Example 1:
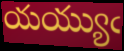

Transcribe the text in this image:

యయ్యుఁ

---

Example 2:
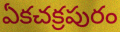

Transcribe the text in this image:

ఏకచక్రపురం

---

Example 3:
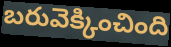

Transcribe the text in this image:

బరువెక్కించింది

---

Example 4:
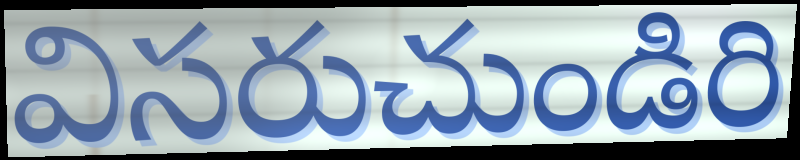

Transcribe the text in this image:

విసరుచుండిరి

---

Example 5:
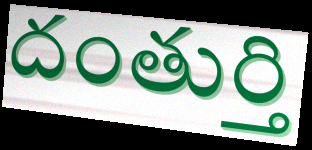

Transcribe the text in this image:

దంతుర్తి